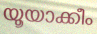
യൂയാക്കീം